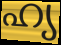
ഹ്യ